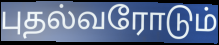
புதல்வரோடும்